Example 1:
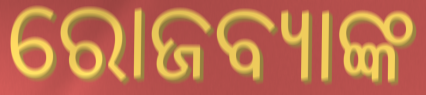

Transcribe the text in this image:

ରୋଜବ୍ୟାଙ୍କ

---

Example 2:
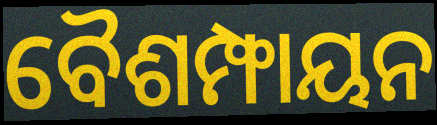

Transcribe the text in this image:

ବୈଶମ୍ଫାୟନ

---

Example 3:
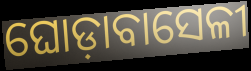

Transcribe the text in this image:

ଘୋଡ଼ାବାସେଳୀ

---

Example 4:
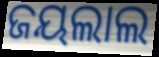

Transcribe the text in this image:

ଜୟଲାଲ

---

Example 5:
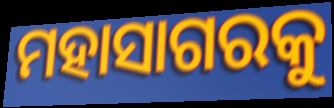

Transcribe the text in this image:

ମହାସାଗରକୁ